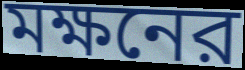
মক্ষনের